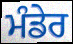
ਮੰਡੇਰ